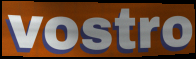
vostro